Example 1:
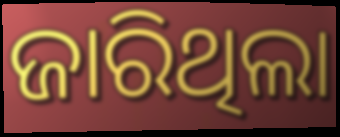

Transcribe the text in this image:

ଜାରିଥିଲା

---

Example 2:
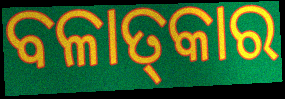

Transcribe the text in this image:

ବଳାତ୍‌କାର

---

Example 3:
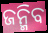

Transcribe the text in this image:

ଜନ୍ମିବ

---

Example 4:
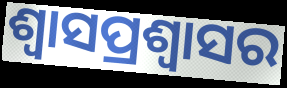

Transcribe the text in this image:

ଶ୍ଵାସପ୍ରଶ୍ଵାସର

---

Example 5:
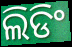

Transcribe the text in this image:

ଲିଡିଂ